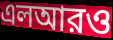
এলআরও